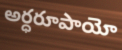
అర్ధరూపాయో